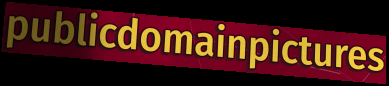
publicdomainpictures